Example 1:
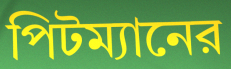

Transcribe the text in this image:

পিটম্যানের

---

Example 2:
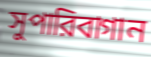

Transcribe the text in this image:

সুপারিবাগান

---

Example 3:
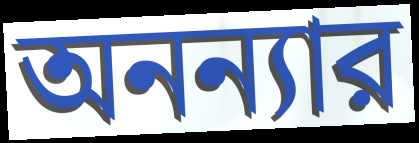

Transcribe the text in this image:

অনন্যার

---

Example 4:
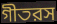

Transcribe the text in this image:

গীতরস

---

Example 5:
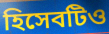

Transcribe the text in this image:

হিসেবটিও